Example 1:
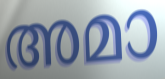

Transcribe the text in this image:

അമാ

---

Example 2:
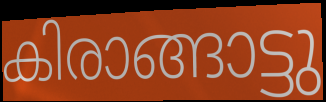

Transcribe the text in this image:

കിരാങ്ങാട്ടു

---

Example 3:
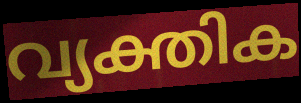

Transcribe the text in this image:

വ്യക്തിക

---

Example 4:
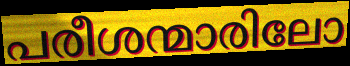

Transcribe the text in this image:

പരീശന്മാരിലോ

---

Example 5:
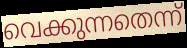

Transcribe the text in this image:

വെക്കുന്നതെന്ന്